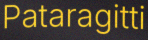
Pataragitti